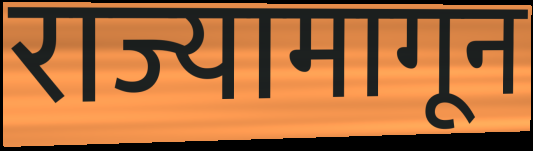
राज्यामागून